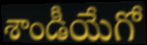
శాండీయేగో